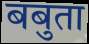
बबुता